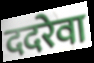
ददरेवा